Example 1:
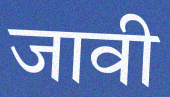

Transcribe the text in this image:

जावी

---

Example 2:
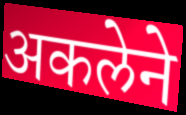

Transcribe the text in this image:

अकलेने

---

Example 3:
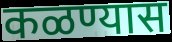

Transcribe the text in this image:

कळण्यास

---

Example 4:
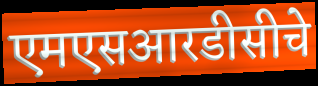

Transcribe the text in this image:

एमएसआरडीसीचे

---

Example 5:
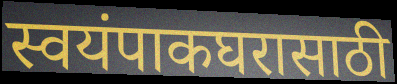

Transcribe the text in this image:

स्वयंपाकघरासाठी